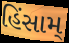
હિંસામ્